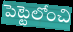
పెట్టెలోంచి